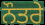
ਨੌਤਰੇ